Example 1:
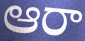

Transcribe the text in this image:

ఆరా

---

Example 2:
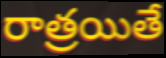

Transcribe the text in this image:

రాత్రయితే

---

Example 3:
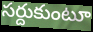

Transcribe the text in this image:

సర్దుకుంటూ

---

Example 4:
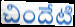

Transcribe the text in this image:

చిందేటి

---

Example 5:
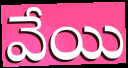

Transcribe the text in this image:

వేయి